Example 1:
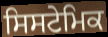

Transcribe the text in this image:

ਸਿਸਟੇਮਿਕ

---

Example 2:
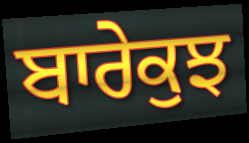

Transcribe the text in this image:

ਬਾਰੇਕੁਝ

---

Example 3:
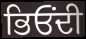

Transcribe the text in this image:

ਭਿਓਂਦੀ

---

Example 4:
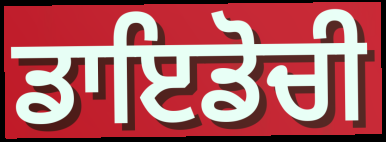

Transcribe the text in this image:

ਡਾਇਡੋਚੀ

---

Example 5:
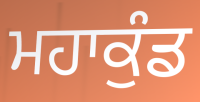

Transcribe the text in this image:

ਮਹਾਕੁੰਡ